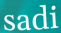
sadi